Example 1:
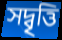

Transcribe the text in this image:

সদ্বৃত্তি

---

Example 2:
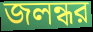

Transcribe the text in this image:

জলন্ধর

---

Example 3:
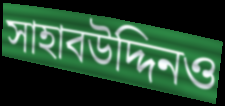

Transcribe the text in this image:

সাহাবউদ্দিনও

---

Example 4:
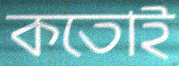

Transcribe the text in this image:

কতোই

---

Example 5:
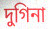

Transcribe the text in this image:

দুগিনা